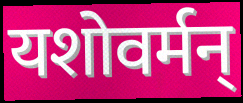
यशोवर्मन्